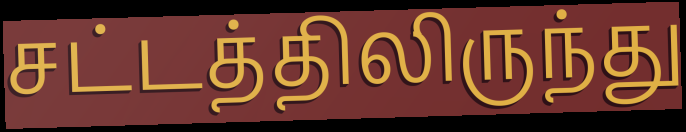
சட்டத்திலிருந்து